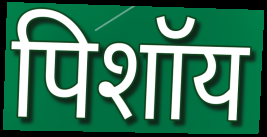
पिशॉय